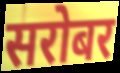
सरोबर